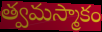
త్వమస్మాకం